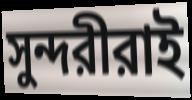
সুন্দরীরাই